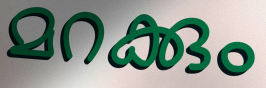
മറക്കും